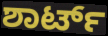
ಶಾರ್ಟ್